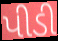
પીડી